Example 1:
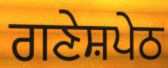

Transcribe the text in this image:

ਗਣੇਸ਼ਪੇਠ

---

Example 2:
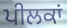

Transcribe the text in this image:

ਪੀਲਕਾਂ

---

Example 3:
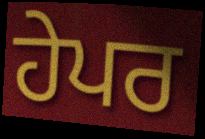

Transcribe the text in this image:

ਹੇਪਰ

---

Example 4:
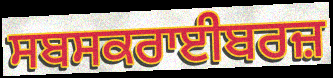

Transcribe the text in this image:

ਸਬਸਕਰਾਈਬਰਜ਼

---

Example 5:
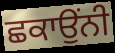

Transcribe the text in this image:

ਛਕਾਉਂਨੀ